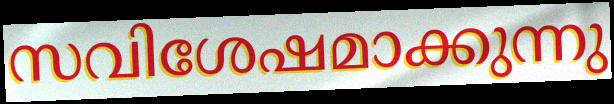
സവിശേഷമാക്കുന്നു